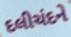
દલીચંદને